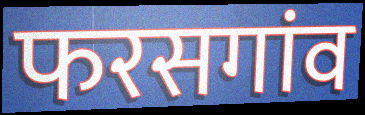
फरसगांव